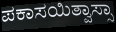
ಪಕಾಸಯಿತ್ವಾಸ್ಸಾ